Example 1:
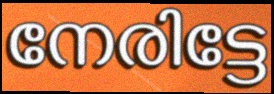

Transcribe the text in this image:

നേരിട്ടേ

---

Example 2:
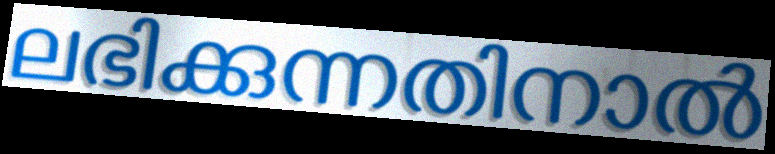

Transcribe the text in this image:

ലഭിക്കുന്നതിനാൽ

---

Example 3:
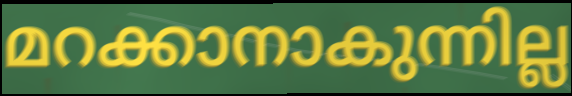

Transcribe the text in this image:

മറക്കാനാകുന്നില്ല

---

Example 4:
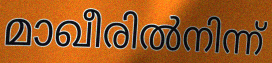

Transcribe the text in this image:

മാഖീരിൽനിന്ന്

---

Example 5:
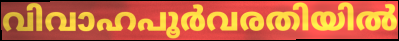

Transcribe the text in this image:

വിവാഹപൂർവരതിയിൽ